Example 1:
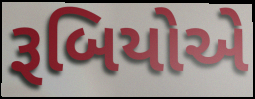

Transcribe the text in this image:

રૂબિયોએ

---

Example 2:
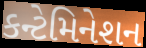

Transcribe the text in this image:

કન્ટેમિનેશન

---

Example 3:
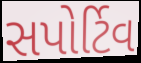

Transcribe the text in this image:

સપોર્ટિવ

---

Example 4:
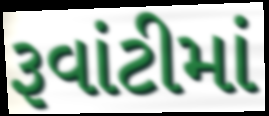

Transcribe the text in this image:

રૂવાંટીમાં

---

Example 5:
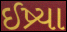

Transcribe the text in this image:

ઈષ્ર્યા